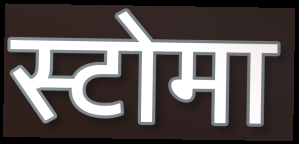
स्टोमा